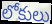
లోకులు